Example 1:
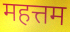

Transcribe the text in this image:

महत्तम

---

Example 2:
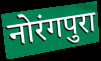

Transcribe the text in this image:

नोरंगपुरा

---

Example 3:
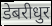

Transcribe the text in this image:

डेबरीधुर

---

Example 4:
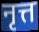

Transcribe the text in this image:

नृत्त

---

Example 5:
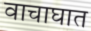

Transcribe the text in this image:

वाचाघात